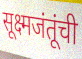
सूक्ष्मजंतूंची